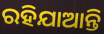
ରହିଯାଆନ୍ତି